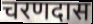
चरणदास